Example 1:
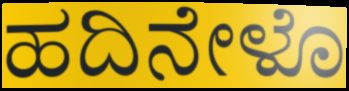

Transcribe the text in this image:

ಹದಿನೇಳೊ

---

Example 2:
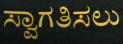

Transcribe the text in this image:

ಸ್ವಾಗತಿಸಲು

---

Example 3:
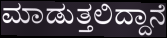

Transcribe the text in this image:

ಮಾಡುತ್ತಲಿದ್ದಾನೆ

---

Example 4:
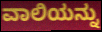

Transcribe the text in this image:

ವಾಲಿಯನ್ನು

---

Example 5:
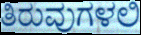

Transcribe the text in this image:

ತಿರುವುಗಳಲಿ